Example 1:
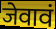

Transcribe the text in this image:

जेवावं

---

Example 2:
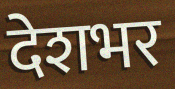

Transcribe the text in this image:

देशभर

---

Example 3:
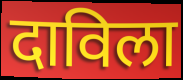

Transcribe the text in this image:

दाविला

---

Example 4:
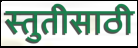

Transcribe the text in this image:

स्तुतीसाठी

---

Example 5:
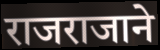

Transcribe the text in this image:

राजराजाने